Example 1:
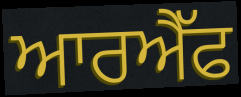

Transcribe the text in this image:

ਆਰਐੱਫ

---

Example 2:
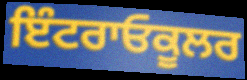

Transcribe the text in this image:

ਇੰਟਰਾਓਕੂਲਰ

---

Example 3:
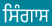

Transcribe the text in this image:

ਸਿੰਗਾਸ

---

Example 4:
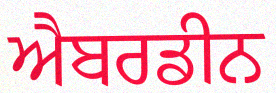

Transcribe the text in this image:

ਐਬਰਡੀਨ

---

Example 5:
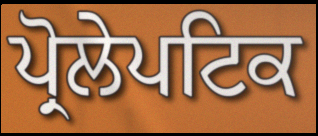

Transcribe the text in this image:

ਪ੍ਰੋਲੇਪਟਿਕ